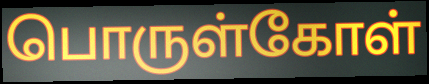
பொருள்கோள்